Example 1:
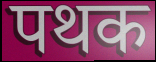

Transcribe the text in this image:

पथक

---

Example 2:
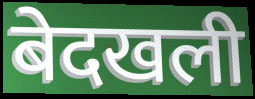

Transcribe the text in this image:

बेदखली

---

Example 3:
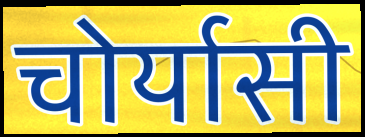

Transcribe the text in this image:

चोर्यासी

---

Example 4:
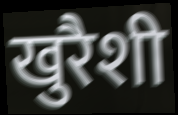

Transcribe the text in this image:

खुरैशी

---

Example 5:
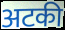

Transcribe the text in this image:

अटकी